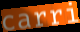
carri